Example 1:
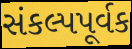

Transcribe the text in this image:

સંકલ્પપૂર્વક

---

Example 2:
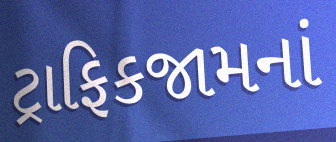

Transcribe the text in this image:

ટ્રાફિકજામનાં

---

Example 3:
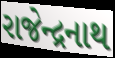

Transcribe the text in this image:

રાજેન્દ્રનાથ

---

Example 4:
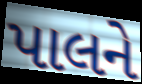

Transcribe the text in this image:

પાલને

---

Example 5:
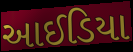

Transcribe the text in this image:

આઈડિયા